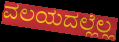
ವಲಯದಲ್ಲೆಲ್ಲ